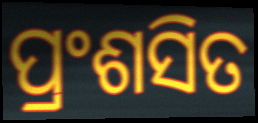
ପ୍ରଂଶସିତ